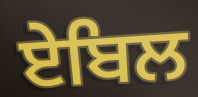
ਏਬਿਲ